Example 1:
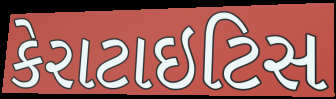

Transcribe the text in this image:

કેરાટાઇટિસ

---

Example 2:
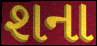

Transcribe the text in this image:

શના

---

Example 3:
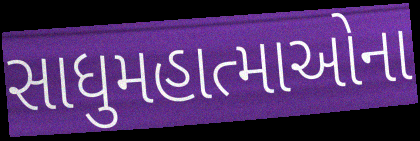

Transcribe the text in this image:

સાધુમહાત્માઓના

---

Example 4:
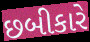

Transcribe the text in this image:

છબીકારે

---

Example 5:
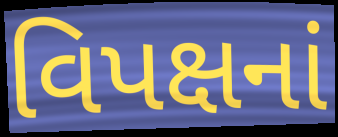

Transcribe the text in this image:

વિપક્ષનાં